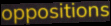
oppositions